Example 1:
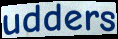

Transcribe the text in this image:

udders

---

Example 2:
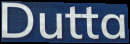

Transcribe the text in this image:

Dutta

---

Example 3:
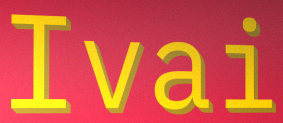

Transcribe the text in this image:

Ivai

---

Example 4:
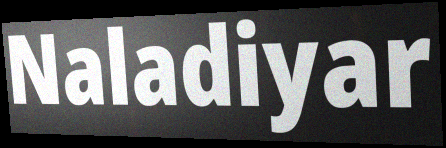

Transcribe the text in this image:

Naladiyar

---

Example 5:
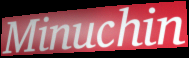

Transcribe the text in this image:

Minuchin